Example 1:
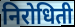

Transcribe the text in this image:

निरोधिती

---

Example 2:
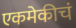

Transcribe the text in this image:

एकमेकीचं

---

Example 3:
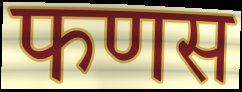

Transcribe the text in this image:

फणस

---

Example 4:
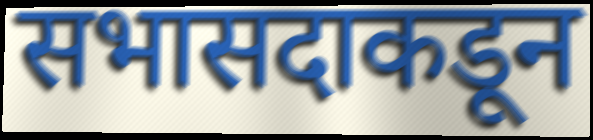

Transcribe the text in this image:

सभासदाकडून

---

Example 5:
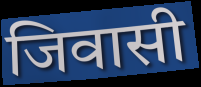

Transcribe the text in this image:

जिवासी